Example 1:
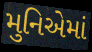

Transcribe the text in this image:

મુનિએમાં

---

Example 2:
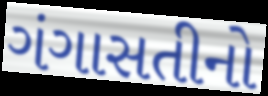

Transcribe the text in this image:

ગંગાસતીનો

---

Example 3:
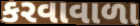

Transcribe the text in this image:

કરવાવાળા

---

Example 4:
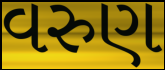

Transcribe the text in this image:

વરુણ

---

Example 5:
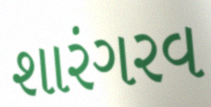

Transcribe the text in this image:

શારંગરવ